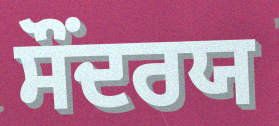
ਸੌਂਦਰਯ